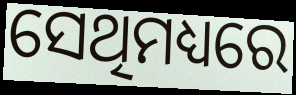
ସେଥିମଧ୍ୟରେ